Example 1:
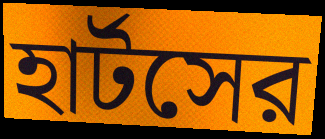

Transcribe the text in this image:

হার্টসের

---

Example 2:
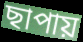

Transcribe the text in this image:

ছাপায়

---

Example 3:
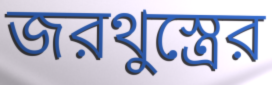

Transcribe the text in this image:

জরথুস্ত্রের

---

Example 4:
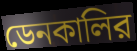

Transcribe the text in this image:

ডেনকালির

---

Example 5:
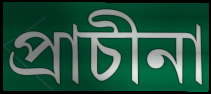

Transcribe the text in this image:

প্রাচীনা